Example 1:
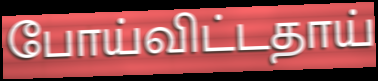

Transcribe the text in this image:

போய்விட்டதாய்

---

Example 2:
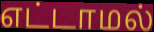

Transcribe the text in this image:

எட்டாமல்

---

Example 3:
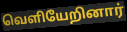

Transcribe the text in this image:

வெளியேறினார்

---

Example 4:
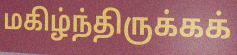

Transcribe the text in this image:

மகிழ்ந்திருக்கக்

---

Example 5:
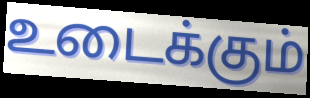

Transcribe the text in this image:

உடைக்கும்